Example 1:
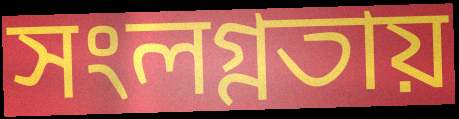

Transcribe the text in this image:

সংলগ্নতায়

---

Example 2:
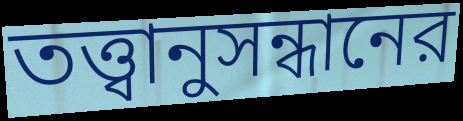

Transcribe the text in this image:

তত্ত্বানুসন্ধানের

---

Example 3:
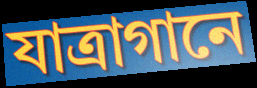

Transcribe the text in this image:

যাত্রাগানে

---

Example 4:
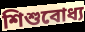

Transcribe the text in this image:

শিশুবোধ্য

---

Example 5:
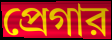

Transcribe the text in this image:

প্রেগার